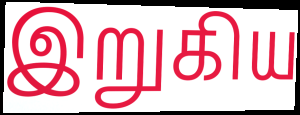
இறுகிய